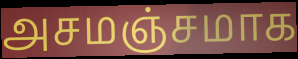
அசமஞ்சமாக